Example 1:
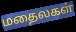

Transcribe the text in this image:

மதைலகள்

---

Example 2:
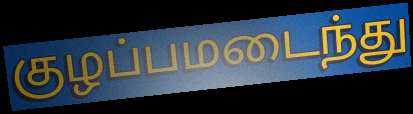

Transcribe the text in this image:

குழப்பமடைந்து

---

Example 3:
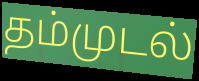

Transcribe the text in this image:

தம்முடல்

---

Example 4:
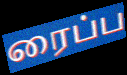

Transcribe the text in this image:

ரைப்ப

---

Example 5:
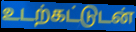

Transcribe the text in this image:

உடற்கட்டுடன்